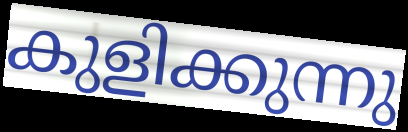
കുളിക്കുന്നു